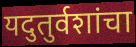
यदुतुर्वशांचा